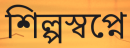
শিল্পস্বপ্নে